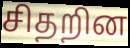
சிதறின